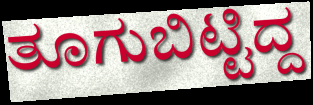
ತೂಗುಬಿಟ್ಟಿದ್ದ